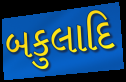
બકુલાદિ